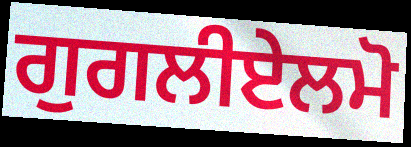
ਗੁਗਲੀਏਲਮੋ